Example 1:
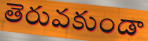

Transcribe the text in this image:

తెరువకుండా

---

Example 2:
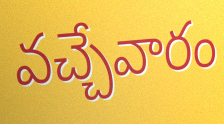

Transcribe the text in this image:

వచ్చేవారం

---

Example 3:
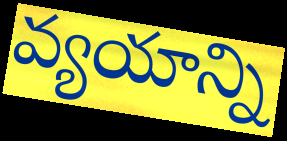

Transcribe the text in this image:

వ్యయాన్ని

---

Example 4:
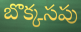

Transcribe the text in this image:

బొక్కసపు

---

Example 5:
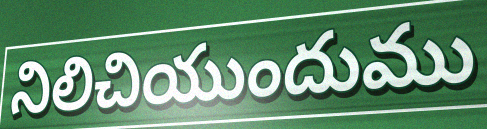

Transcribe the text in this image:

నిలిచియుందుము